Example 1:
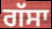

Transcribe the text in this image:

ਗੱਸਾ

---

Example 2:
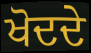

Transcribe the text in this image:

ਖੋਦਦੇ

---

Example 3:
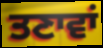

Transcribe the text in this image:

ਤਣਾਵਾਂ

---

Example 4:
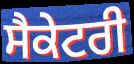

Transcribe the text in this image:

ਸੈਕੇਟਰੀ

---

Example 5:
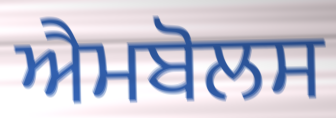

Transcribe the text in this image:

ਐਮਬੋਲਸ